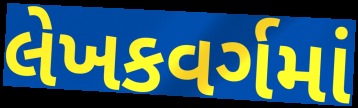
લેખકવર્ગમાં